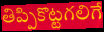
తిప్పికొట్టగలిగే